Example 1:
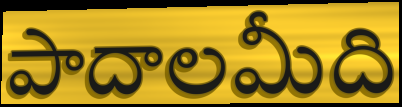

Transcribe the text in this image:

పాదాలమీది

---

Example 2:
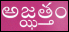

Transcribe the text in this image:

అజ్ఝత్తం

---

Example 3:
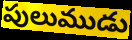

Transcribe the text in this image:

పులుముడు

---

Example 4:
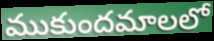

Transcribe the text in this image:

ముకుందమాలలో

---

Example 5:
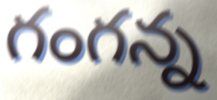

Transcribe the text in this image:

గంగన్న